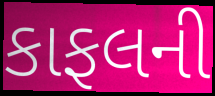
કાફલની